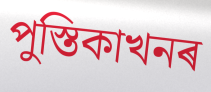
পুস্তিকাখনৰ